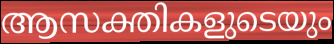
ആസക്തികളുടെയും